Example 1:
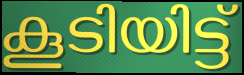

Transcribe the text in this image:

കൂടിയിട്ട്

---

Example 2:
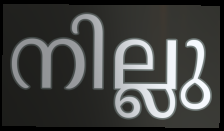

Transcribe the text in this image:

നില്ലു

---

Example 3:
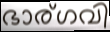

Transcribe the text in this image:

ഭാര്ഗവി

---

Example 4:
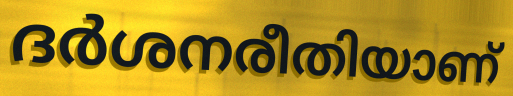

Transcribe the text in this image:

ദർശനരീതിയാണ്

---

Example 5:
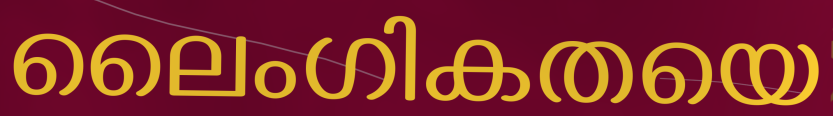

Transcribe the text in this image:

ലൈംഗികതയെ